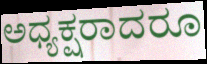
ಅಧ್ಯಕ್ಷರಾದರೂ